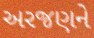
અરજણને